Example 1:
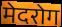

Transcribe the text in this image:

मेदरोग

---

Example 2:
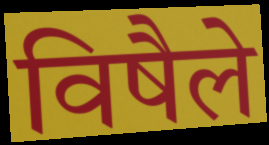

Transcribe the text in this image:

विषैले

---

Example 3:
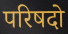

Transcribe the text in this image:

परिषदो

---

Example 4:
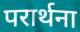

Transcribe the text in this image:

परार्थना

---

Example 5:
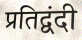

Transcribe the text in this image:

प्रतिद्वंदी